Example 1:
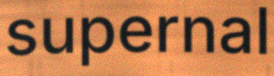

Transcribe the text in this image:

supernal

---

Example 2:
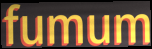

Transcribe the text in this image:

fumum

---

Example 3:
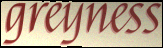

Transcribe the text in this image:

greyness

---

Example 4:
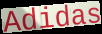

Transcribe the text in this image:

Adidas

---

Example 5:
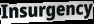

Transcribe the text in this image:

Insurgency